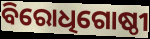
ବିରୋଧିଗୋଷ୍ଠୀ